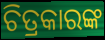
ଚିତ୍ରକାରଙ୍କ